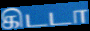
கிடடா